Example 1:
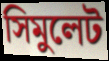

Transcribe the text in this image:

সিমুলেট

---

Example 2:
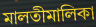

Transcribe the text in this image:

মালতীমালিকা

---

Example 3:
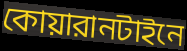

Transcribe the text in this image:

কোয়ারানটাইনে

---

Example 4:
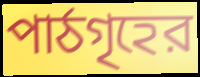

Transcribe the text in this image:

পাঠগৃহের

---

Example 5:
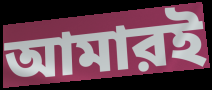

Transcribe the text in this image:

আমারই